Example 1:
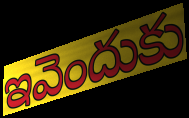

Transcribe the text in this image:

ఇవెందుకు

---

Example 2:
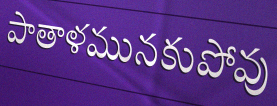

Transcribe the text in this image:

పాతాళమునకుపోవు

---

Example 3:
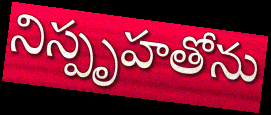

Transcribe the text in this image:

నిస్పృహతోను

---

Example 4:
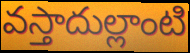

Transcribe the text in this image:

వస్తాదుల్లాంటి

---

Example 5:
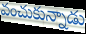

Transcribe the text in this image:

వంచుకున్నాడు